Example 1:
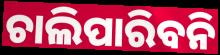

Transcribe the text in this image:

ଚାଲିପାରିବନି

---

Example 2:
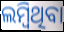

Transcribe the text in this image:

ଲମ୍ବିଥିବା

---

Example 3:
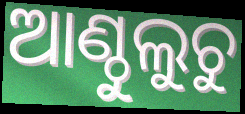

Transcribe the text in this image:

ଆଣ୍ଠୁଲୁଚୁ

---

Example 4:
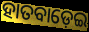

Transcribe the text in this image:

ହାତବାଡ଼େଇ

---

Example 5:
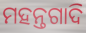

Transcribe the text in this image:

ମହନ୍ତଗାଦି